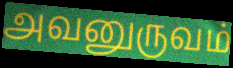
அவனுருவம்